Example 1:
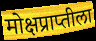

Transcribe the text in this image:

मोक्षप्राप्तीला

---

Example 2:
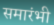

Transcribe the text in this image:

समारंभी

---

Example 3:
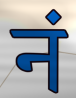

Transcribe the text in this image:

नं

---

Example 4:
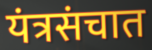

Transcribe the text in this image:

यंत्रसंचात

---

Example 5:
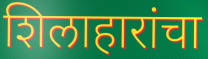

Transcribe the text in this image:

शिलाहारांचा